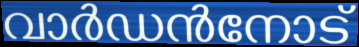
വാർഡൻനോട്